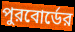
পুরবোর্ডের